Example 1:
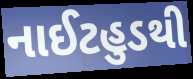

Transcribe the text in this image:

નાઈટહુડથી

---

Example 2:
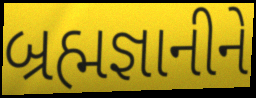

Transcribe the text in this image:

બ્રહ્મજ્ઞાનીને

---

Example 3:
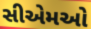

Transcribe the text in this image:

સીએમઓ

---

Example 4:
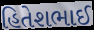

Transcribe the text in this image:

હિતેશભાઈ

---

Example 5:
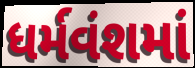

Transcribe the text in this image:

ધર્મવંશમાં